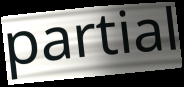
partial